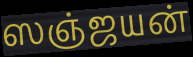
ஸஞ்ஜயன்